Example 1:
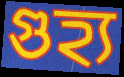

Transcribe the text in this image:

গুহ্য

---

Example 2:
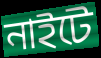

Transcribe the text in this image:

নাইটে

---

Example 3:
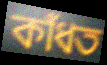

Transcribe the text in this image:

কাঁধত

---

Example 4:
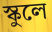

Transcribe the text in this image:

স্কুলে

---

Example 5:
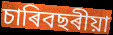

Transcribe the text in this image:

চাৰিবছৰীয়া